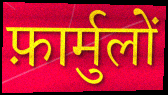
फ़ार्मुलों